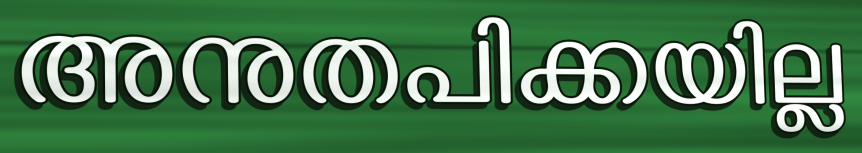
അനുതപിക്കയില്ല